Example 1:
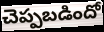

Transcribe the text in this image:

చెప్పబడిందో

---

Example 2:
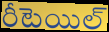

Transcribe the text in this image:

రీటెయిల్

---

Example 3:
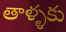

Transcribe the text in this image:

తాళ్ళకు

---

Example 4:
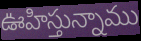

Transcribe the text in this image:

ఊహిస్తున్నాము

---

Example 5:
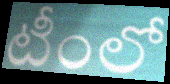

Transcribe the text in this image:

టీంలో